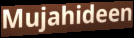
Mujahideen